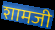
शामजी